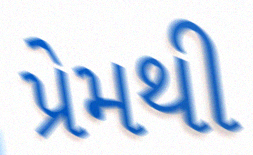
પ્રેમથી